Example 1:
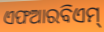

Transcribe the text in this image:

ଏଫଆରବିଏମ୍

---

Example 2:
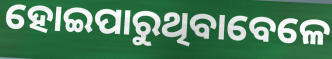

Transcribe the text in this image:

ହୋଇପାରୁଥିବାବେଳେ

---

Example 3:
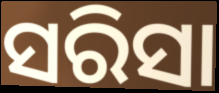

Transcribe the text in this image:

ସରିସା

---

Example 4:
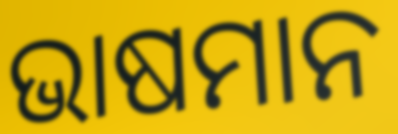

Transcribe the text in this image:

ଭାଷମାନ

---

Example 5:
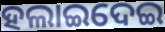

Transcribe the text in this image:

ହଲାଇଦେଇ